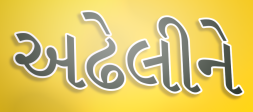
અઢેલીને